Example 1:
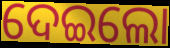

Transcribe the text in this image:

ଦେଇଲୋ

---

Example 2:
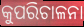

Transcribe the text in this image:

କୁପରିଚାଳନା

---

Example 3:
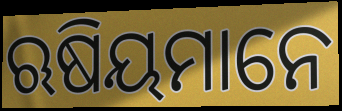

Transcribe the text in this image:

ଋଷିୟମାନେ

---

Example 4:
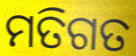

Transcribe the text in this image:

ମତିଗତ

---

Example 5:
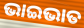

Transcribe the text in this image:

ଭାଇଭାତ